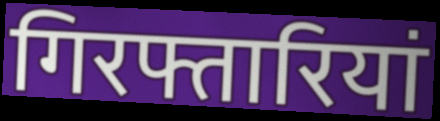
गिरफ्तारियां